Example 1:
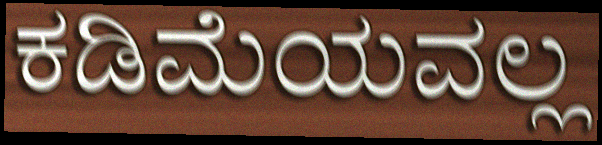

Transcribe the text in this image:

ಕಡಿಮೆಯವಲ್ಲ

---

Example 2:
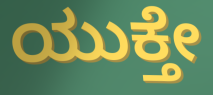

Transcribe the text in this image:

ಯುಕ್ತೇ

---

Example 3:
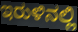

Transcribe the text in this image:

ಇರುಳಿನಲ್ಲಿ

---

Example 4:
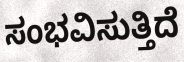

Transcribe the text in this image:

ಸಂಭವಿಸುತ್ತಿದೆ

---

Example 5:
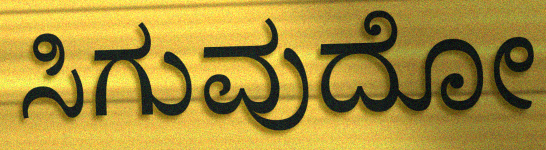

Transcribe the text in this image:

ಸಿಗುವುದೋ